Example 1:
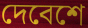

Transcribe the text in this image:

দেবেশে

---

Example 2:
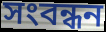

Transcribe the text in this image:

সংবন্ধন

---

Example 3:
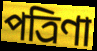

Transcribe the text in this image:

পত্রিণা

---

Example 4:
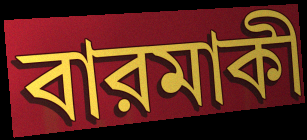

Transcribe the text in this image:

বারমাকী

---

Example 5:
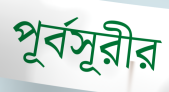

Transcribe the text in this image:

পূর্বসূরীর